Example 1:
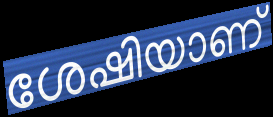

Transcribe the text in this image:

ശേഷിയാണ്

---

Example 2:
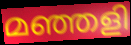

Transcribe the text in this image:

മഞ്ഞളി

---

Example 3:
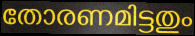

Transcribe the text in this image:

തോരണമിട്ടതും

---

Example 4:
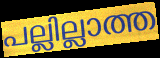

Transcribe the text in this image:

പല്ലില്ലാത്ത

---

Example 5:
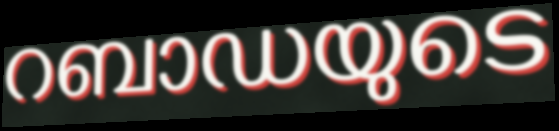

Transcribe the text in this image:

റബാഡയുടെ